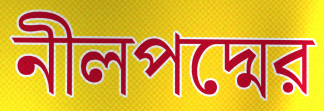
নীলপদ্মের